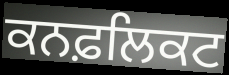
ਕਨਫ਼ਲਿਕਟ